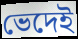
ভেদেই